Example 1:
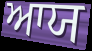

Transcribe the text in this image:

ਆਯ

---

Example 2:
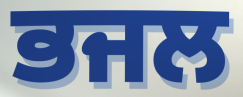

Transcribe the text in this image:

ਭਜਲ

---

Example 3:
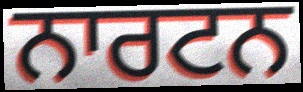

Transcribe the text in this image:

ਨਾਰਟਨ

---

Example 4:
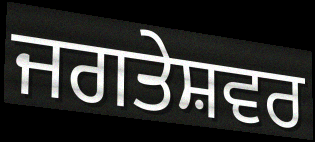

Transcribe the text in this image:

ਜਗਤੇਸ਼ਵਰ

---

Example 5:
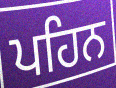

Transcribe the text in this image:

ਪਹਿਨ